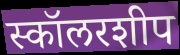
स्कॉलरशीप